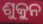
ଶୁକୁନ